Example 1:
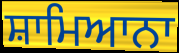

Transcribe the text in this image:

ਸ਼ਾਮਿਆਨਾ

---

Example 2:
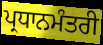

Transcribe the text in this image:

ਪ੍ਰਧਾਨਮੰਤਰੀ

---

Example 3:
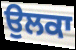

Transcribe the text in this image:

ਉਲਕਾ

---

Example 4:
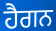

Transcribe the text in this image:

ਹੈਗਨ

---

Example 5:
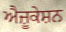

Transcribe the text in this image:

ਐਜ਼ੂਕੇਸ਼ਨ